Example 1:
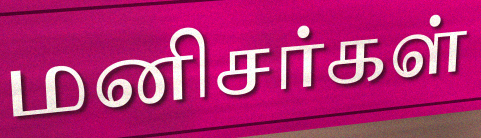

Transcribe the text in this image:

மனிசர்கள்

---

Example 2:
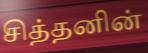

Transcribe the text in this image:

சித்தனின்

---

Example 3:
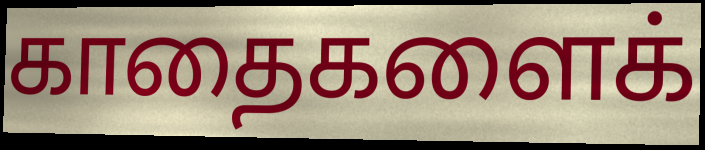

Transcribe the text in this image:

காதைகளைக்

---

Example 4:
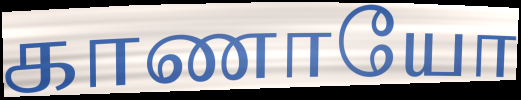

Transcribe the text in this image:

காணாயோ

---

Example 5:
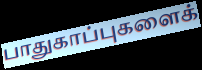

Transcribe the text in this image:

பாதுகாப்புகளைக்